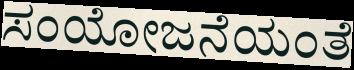
ಸಂಯೋಜನೆಯಂತೆ